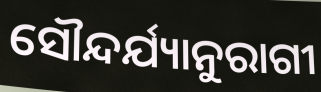
ସୌନ୍ଦର୍ଯ୍ୟାନୁରାଗୀ